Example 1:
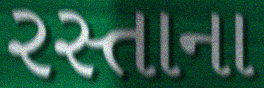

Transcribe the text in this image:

રસ્તાના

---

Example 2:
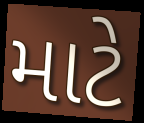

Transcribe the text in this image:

માટે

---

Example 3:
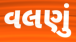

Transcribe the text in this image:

વલણું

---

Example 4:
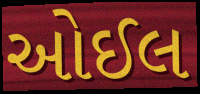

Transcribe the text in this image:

ઓઈલ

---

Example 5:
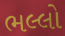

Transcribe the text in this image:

ભલ્લો